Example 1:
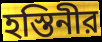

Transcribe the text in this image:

হস্তিনীর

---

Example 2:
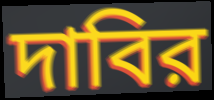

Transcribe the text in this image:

দাবির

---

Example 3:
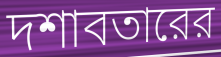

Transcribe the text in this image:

দশাবতারের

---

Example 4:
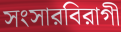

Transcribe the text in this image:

সংসারবিরাগী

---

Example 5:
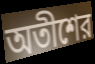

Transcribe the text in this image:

অতীশের